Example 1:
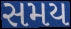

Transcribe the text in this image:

સમય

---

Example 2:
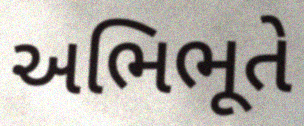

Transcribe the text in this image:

અભિભૂતે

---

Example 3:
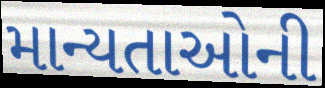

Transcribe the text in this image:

માન્યતાઓની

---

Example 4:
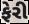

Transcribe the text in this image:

ફેરી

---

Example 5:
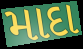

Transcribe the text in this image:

માદા